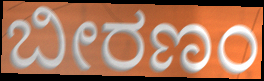
ಬೀರಣಂ